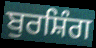
ਬੁਰਸ਼ਿੰਗ